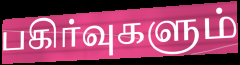
பகிர்வுகளும்